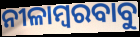
ନୀଳାମ୍ବରବାବୁ